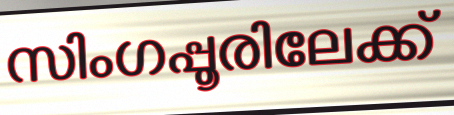
സിംഗപ്പൂരിലേക്ക്